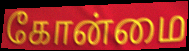
கோன்மை